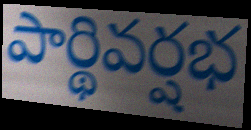
పార్థివర్షభ